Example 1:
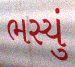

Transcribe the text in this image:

ભસ્યું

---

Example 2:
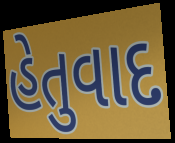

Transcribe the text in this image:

હેતુવાદ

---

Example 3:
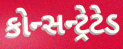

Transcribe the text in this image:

કોન્સન્ટ્રેટેડ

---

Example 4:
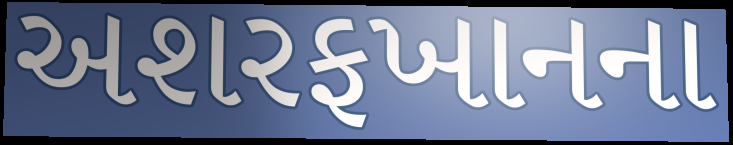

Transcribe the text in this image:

અશરફખાનના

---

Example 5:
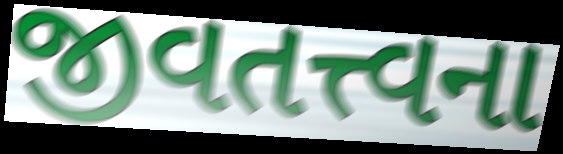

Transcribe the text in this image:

જીવતત્ત્વના